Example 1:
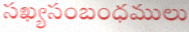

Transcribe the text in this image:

సఖ్యసంబంధములు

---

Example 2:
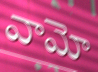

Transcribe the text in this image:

వామో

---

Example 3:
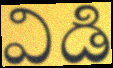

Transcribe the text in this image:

విడి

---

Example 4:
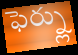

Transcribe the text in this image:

ఫెర్న్లు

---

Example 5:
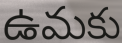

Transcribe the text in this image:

ఉమకు